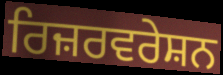
ਰਿਜ਼ਰਵਰੇਸ਼ਨ